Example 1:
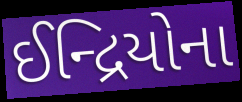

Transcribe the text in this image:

ઈન્દ્રિયોના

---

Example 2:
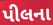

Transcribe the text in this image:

પીલના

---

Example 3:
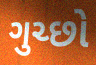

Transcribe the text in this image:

ગુચ્છો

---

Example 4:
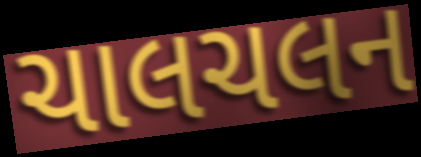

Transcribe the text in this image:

ચાલચલન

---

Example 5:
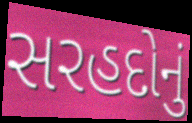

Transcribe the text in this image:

સરહદોનું